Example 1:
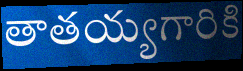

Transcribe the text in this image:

తాతయ్యగారికి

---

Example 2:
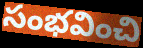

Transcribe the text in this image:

సంభవించి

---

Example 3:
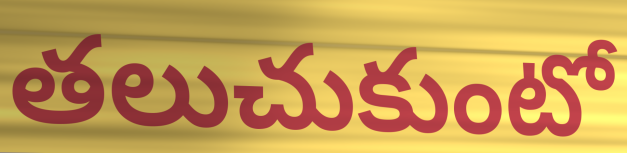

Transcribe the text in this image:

తలుచుకుంటో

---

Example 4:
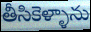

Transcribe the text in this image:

తీసికెళ్ళాను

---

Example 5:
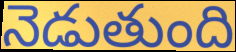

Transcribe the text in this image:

నెడుతుంది